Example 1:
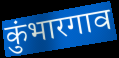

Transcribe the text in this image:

कुंभारगाव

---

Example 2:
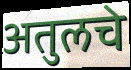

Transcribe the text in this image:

अतुलचे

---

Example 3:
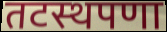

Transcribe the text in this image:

तटस्थपणा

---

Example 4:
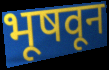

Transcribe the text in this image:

भूषवून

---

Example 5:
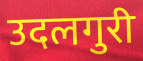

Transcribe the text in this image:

उदलगुरी